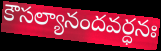
కౌసల్యానందవర్ధనః